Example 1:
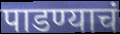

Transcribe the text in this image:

पाडण्याचं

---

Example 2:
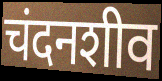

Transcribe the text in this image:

चंदनशीव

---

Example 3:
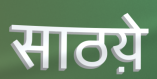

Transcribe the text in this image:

साठय़े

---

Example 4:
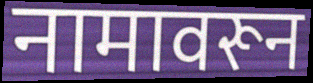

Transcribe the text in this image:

नामावरून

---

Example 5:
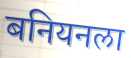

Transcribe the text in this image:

बनियनला